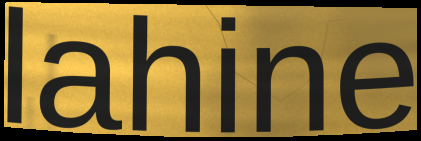
lahine